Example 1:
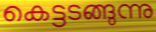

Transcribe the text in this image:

കെട്ടടങ്ങുന്നു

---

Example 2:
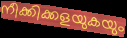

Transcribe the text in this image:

നീക്കിക്കളയുകയും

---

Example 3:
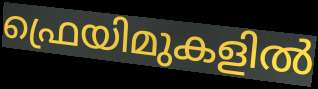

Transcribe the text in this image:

ഫ്രെയിമുകളിൽ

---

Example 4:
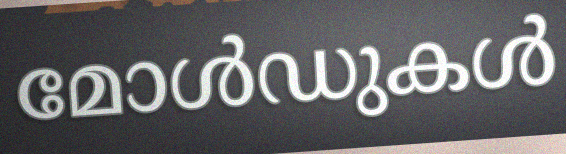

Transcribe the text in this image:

മോൾഡുകൾ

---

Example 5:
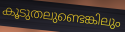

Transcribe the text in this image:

കൂടുതലുണ്ടെങ്കിലും